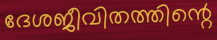
ദേശജീവിതത്തിന്റെ